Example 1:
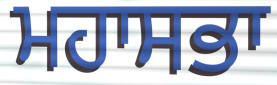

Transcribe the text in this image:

ਮਹਾਸਭਾ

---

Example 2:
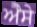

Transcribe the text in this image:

ਐੇਸੇ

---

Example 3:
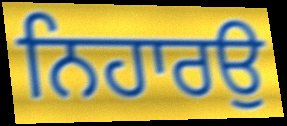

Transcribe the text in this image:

ਨਿਹਾਰਉ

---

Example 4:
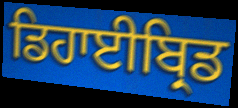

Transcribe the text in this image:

ਡਿਹਾਈਬ੍ਰਿਡ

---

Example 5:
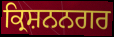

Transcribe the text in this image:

ਕ੍ਰਿਸ਼ਨਨਗਰ